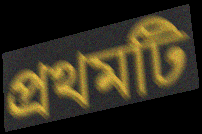
প্ৰথমটি